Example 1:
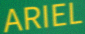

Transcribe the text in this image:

ARIEL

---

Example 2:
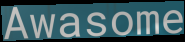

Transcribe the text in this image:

Awasome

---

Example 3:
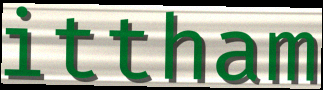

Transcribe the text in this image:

ittham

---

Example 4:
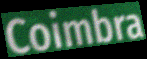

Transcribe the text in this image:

Coimbra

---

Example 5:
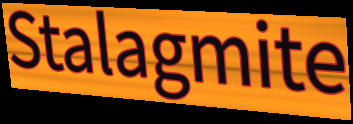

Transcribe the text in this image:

Stalagmite